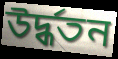
উর্দ্ধতন